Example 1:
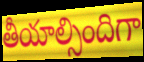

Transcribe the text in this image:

తీయాల్సిందిగా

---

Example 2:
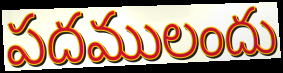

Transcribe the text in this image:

పదములందు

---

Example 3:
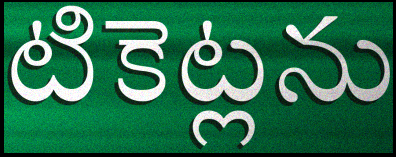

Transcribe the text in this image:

టికెట్లను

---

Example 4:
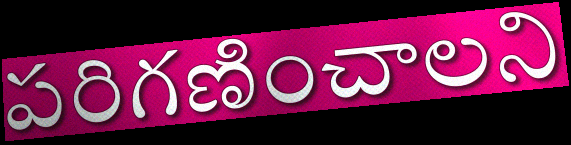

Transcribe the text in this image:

పరిగణించాలని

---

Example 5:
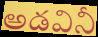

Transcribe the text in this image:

అడవినీ